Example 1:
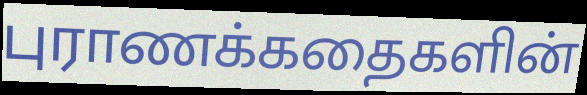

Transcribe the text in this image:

புராணக்கதைகளின்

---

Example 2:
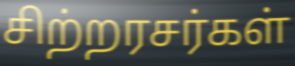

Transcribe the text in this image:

சிற்றரசர்கள்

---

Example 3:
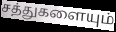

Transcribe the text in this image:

சத்துகளையும்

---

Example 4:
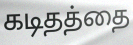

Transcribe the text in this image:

கடிதத்தை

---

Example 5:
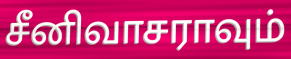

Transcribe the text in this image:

சீனிவாசராவும்